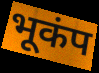
भूकंप